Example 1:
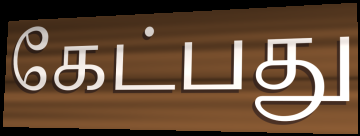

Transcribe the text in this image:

கேட்பது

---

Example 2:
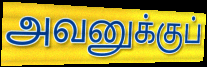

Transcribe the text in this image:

அவனுக்குப்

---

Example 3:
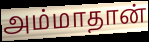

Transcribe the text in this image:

அம்மாதான்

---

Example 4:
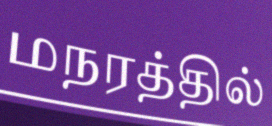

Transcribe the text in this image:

மநரத்தில்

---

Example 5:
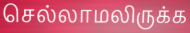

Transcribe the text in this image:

செல்லாமலிருக்க